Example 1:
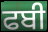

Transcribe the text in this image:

ਫਬੀ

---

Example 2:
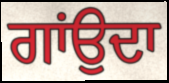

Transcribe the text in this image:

ਗਾਂਉਦਾ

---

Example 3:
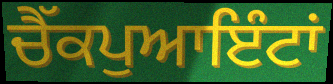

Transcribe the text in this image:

ਚੈੱਕਪੁਆਇੰਟਾਂ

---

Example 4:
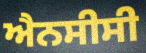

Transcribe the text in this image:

ਐਨਸੀਸੀ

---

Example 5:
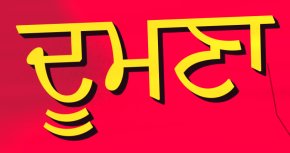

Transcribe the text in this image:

ਦੂਮਣਾ